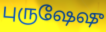
புருஷேஷு